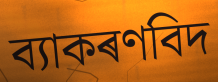
ব্যাকৰণবিদ